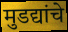
मुडद्यांचे